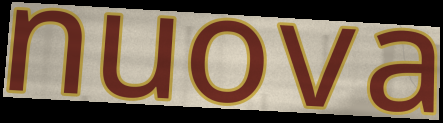
nuova